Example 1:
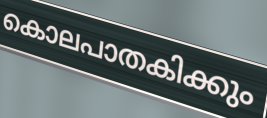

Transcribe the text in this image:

കൊലപാതകിക്കും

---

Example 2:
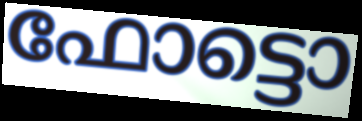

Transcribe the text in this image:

ഫോട്ടൊ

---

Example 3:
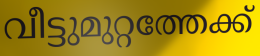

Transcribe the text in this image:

വീട്ടുമുറ്റത്തേക്ക്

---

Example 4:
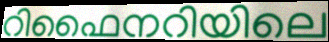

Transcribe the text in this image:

റിഫൈനറിയിലെ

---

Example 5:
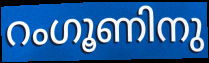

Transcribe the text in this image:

റംഗൂണിനു